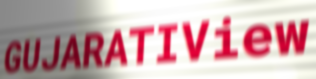
GUJARATIView